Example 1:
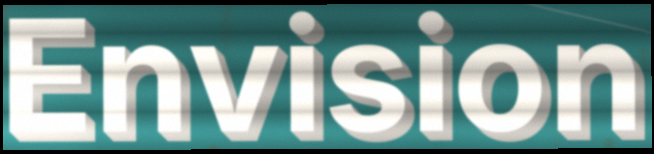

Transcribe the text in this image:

Envision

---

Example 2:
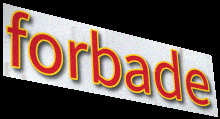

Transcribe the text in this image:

forbade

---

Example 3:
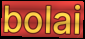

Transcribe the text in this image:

bolai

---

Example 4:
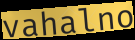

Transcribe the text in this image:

vahalno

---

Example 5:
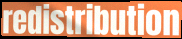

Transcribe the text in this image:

redistribution